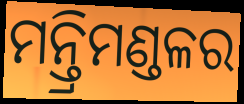
ମନ୍ତ୍ରିମଣ୍ଡଳର